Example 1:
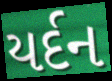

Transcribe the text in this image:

યર્દન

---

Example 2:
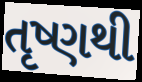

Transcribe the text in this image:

તૃષ્ણથી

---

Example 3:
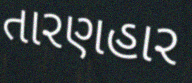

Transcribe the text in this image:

તારણહાર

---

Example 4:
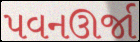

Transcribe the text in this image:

પવનઊર્જા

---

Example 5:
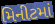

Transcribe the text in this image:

મિનીટમાં